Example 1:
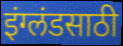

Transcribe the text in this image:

इंग्लंडसाठी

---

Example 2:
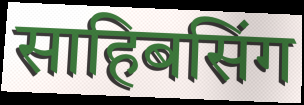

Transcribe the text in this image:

साहिबसिंग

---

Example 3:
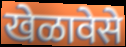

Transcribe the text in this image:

खेळावेसे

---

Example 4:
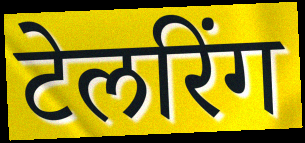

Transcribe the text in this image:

टेलरिंग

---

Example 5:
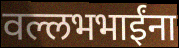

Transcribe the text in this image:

वल्लभभाईंना